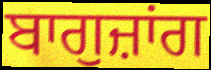
ਬਾਗੁਜ਼ਾਂਗ